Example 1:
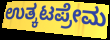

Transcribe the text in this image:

ಉತ್ಕಟಪ್ರೇಮ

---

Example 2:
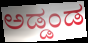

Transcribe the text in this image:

ಅಡ್ಡಂಡ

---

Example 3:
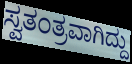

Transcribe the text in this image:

ಸ್ವತಂತ್ರವಾಗಿದ್ದು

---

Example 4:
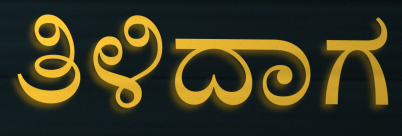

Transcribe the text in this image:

ತಿಳಿದಾಗ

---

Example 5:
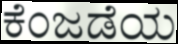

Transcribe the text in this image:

ಕೆಂಜಡೆಯ